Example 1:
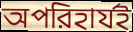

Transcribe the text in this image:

অপরিহার্যই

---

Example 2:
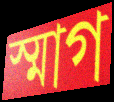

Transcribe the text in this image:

স্মাগ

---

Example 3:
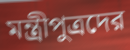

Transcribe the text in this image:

মন্ত্রীপুত্রদের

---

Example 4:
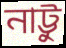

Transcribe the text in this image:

নাট্টু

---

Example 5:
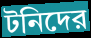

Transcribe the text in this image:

টনিদের